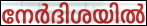
നേർദിശയിൽ